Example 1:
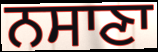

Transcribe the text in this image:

ਨਸਾਣਾ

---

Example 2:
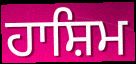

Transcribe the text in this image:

ਹਾਸ਼ਿਮ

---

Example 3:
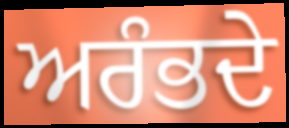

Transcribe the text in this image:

ਅਰੰਭਦੇ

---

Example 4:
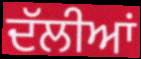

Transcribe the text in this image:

ਦੱਲੀਆਂ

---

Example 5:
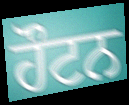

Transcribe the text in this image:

ਹੌਟਨ